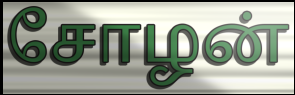
சோழன்